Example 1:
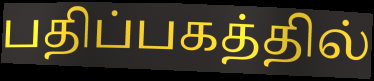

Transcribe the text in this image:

பதிப்பகத்தில்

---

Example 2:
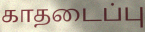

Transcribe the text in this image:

காதடைப்பு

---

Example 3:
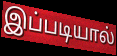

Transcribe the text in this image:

இப்படியால்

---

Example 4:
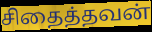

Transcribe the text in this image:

சிதைத்தவன்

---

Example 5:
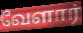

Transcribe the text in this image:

வேளார்